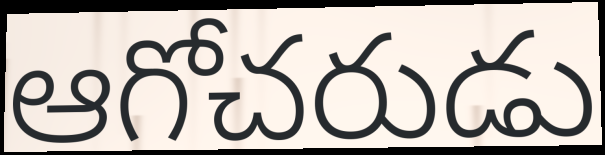
ఆగోచరుడు